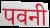
पवनी